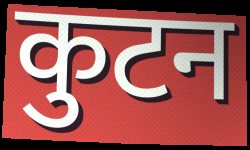
कुटन